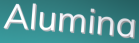
Alumina